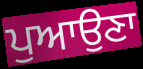
ਪੁਆਉਣਾ